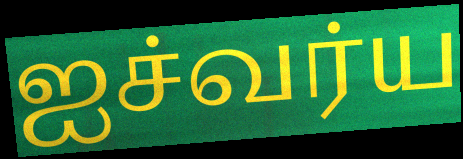
ஐச்வர்ய